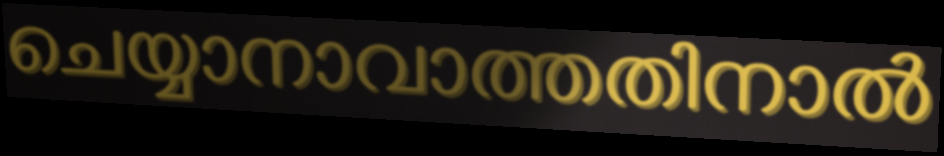
ചെയ്യാനാവാത്തതിനാൽ